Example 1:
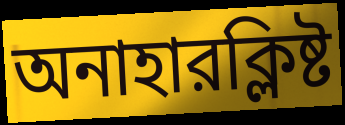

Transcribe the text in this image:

অনাহারক্লিষ্ট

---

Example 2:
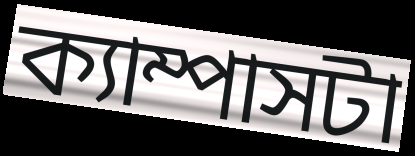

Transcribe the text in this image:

ক্যাম্পাসটা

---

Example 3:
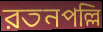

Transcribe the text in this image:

রতনপল্লি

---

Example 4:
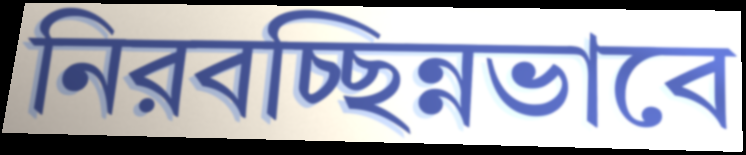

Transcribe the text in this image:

নিরবচ্ছিন্নভাবে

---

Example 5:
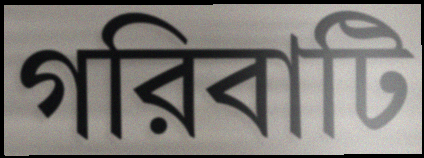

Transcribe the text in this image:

গরিবাটি